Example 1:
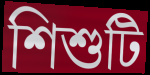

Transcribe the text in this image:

শিশুটি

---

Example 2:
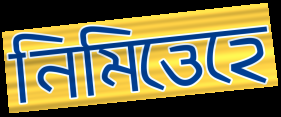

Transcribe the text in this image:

নিমিত্তেহে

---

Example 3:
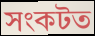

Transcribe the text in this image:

সংকটত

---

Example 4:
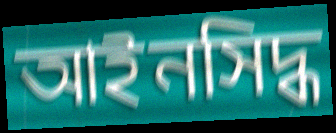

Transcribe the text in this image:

আইনসিদ্ধ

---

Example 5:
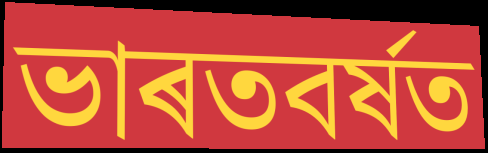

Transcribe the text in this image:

ভাৰতবৰ্ষত